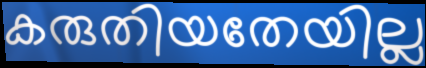
കരുതിയതേയില്ല